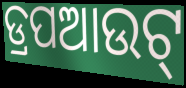
ଡ୍ରପଆଉଟ୍